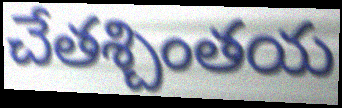
చేతశ్చింతయ